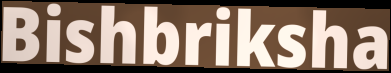
Bishbriksha